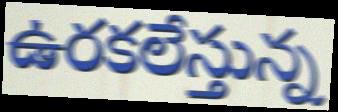
ఉరకలేస్తున్న